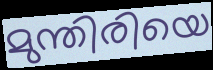
മുന്തിരിയെ